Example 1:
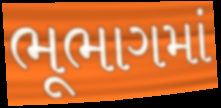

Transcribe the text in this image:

ભૂભાગમાં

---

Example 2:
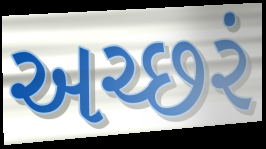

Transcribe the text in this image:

અચ્છરં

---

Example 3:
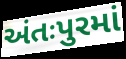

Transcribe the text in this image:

અંતઃપુરમાં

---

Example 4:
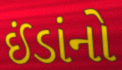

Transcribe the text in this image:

ઈંડાંનો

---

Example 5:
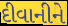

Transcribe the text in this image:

દીવાનીને